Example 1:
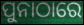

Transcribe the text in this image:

ପୁନାଠାରେ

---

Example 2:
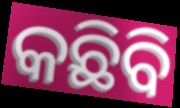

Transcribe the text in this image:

କଛିବି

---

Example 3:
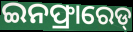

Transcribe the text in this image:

ଇନଫ୍ରାରେଡ୍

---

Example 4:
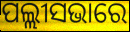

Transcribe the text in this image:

ପଲ୍ଲୀସଭାରେ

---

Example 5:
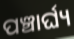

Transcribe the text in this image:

ପଞ୍ଚାର୍ଘ୍ୟ